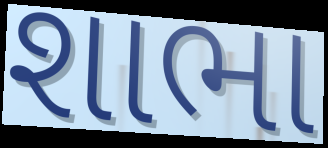
શાભા